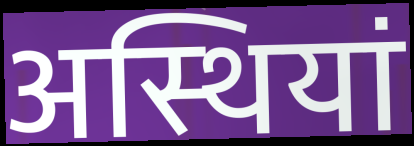
अस्थियां